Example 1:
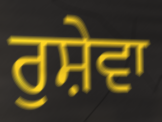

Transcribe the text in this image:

ਰੁਸ਼ੇਵਾ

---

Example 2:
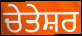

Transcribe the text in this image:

ਚੇਤੇਸ਼ਰ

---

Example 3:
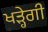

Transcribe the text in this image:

ਖੜ੍ਹੇਗੀ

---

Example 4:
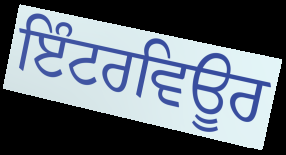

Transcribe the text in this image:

ਇੰਟਰਵਿਊਰ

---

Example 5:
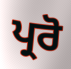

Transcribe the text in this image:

ਪ੍ਰਰੋ